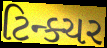
ટિન્ક્ચર